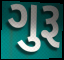
ગુરૂ